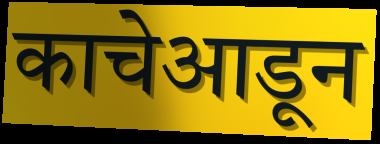
काचेआडून